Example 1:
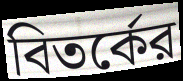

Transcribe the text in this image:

বিতর্কের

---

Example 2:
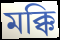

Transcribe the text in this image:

মক্কি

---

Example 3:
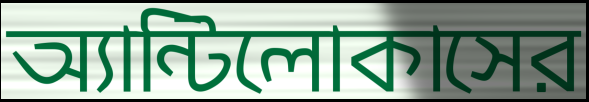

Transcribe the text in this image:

অ্যান্টিলোকাসের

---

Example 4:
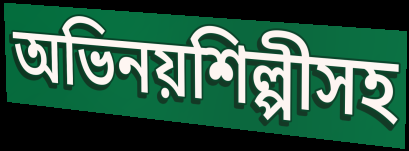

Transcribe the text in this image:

অভিনয়শিল্পীসহ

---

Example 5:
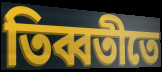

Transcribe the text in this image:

তিব্বতীতে